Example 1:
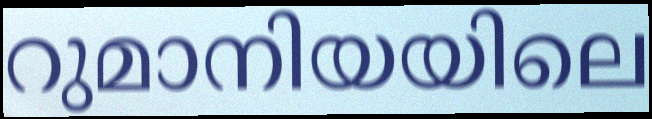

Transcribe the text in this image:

റുമാനിയയിലെ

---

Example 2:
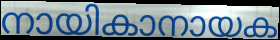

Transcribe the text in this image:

നായികാനായക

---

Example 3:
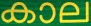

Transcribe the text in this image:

കാല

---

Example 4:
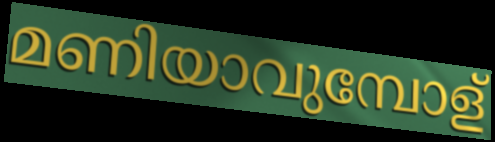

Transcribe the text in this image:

മണിയാവുമ്പോള്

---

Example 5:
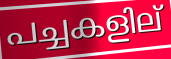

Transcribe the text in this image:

പച്ചകളില്